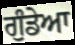
ਗੁੰਡੇਆ